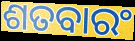
ଶତବାରଂ